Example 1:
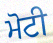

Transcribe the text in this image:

ਮੋਟੀ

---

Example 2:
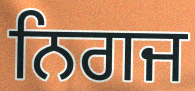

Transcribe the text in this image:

ਨਿਗਜ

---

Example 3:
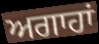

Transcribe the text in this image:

ਅਗਾਹਾਂ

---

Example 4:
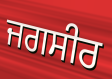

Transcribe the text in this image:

ਜਗਸੀਰ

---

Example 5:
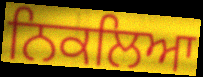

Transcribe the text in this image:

ਨਿਕਲਿਆ